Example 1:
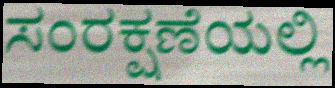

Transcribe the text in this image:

ಸಂರಕ್ಷಣೆಯಲ್ಲಿ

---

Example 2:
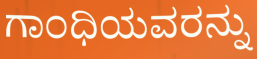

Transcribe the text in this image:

ಗಾಂಧಿಯವರನ್ನು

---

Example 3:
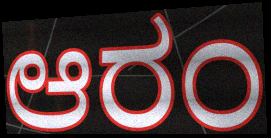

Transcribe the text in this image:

ಆರಂ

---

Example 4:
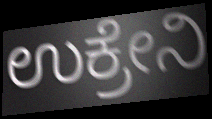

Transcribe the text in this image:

ಉಕ್ರೇನಿ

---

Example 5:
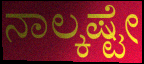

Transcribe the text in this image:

ನಾಲ್ಕಷ್ಟೇ